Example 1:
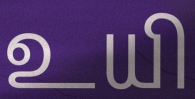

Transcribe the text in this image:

உயி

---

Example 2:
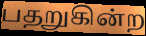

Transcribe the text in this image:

பதறுகின்ற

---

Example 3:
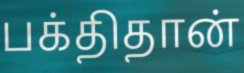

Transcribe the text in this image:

பக்திதான்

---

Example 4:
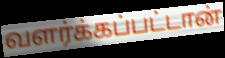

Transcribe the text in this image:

வளர்க்கப்பட்டான்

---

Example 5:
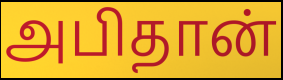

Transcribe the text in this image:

அபிதான்